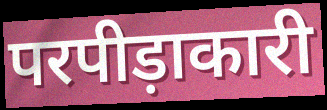
परपीड़ाकारी